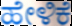
ಹೇಳಿಕೆ